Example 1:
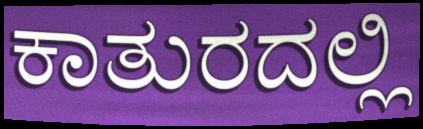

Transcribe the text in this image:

ಕಾತುರದಲ್ಲಿ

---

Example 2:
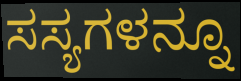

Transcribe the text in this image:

ಸಸ್ಯಗಳನ್ನೂ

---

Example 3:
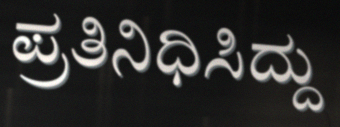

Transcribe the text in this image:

ಪ್ರತಿನಿಧಿಸಿದ್ದು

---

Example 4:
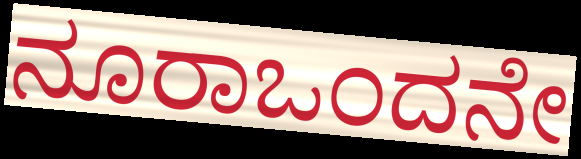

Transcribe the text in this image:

ನೂರಾಒಂದನೇ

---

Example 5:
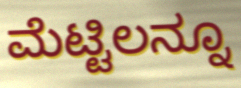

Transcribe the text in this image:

ಮೆಟ್ಟಿಲನ್ನೂ